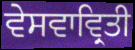
ਵੇਸਵਾਵ੍ਰਿਤੀ